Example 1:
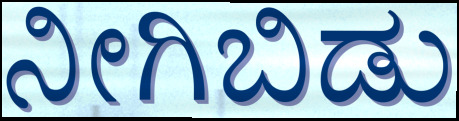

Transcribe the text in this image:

ನೀಗಿಬಿಡು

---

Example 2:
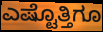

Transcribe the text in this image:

ಎಷ್ಟೊತ್ತಿಗೂ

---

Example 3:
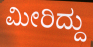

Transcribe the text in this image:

ಮೀರಿದ್ದು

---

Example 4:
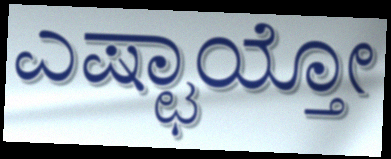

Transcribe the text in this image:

ಎಷ್ಟಾಯ್ತೋ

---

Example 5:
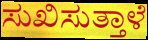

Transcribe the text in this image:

ಸುಖಿಸುತ್ತಾಳೆ